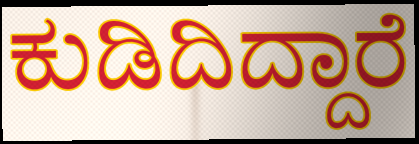
ಕುಡಿದಿದ್ದಾರೆ